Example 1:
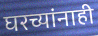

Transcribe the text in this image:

घरच्यांनाही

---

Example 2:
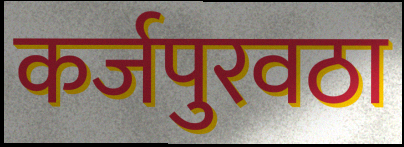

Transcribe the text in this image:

कर्जपुरवठा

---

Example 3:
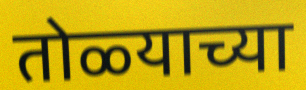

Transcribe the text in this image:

तोळ्याच्या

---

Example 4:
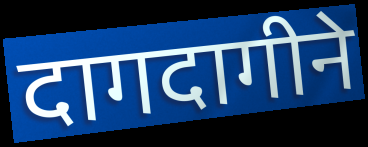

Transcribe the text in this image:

दागदागीने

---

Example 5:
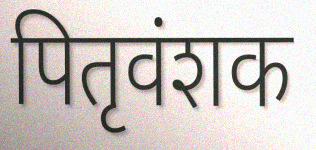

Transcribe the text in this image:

पितृवंशक